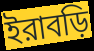
ইরাবড়ি